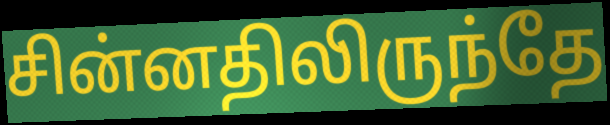
சின்னதிலிருந்தே